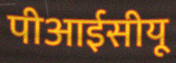
पीआईसीयू